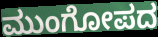
ಮುಂಗೋಪದ